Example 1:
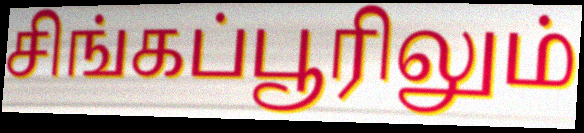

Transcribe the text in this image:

சிங்கப்பூரிலும்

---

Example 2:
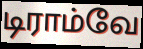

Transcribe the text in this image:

டிராம்வே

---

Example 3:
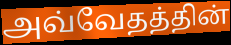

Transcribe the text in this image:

அவ்வேதத்தின்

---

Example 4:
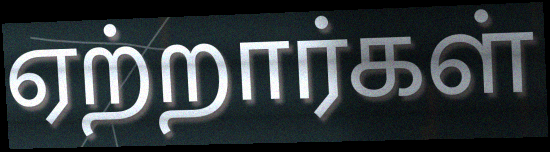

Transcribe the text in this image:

ஏற்றார்கள்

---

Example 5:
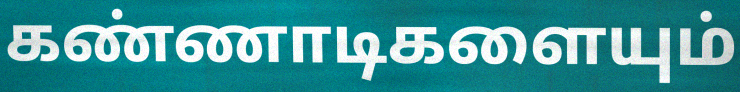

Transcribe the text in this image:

கண்ணாடிகளையும்